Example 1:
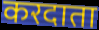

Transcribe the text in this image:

करदाता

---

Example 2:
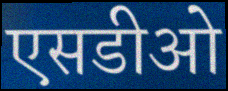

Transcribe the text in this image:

एसडीओ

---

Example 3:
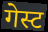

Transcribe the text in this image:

गेस्ट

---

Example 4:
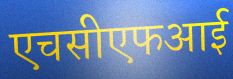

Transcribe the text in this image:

एचसीएफआई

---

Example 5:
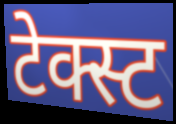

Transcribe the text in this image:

टेक्स्ट